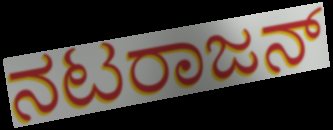
ನಟರಾಜನ್